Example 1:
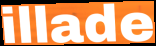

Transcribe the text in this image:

illade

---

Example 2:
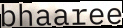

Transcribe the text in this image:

bhaaree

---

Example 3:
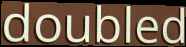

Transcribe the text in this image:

doubled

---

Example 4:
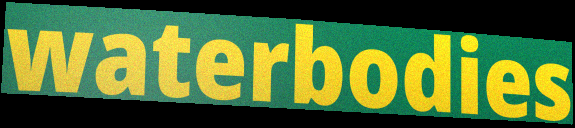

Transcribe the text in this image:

waterbodies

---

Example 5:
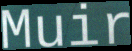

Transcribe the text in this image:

Muir